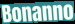
Bonanno